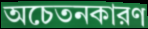
অচেতনকারণ